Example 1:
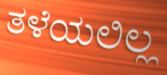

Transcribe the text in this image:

ತಳೆಯಲಿಲ್ಲ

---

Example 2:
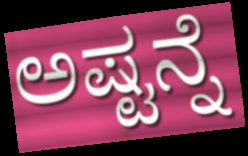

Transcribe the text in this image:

ಅಷ್ಟನ್ನೆ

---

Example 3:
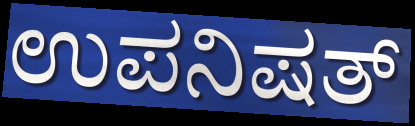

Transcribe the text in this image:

ಉಪನಿಷತ್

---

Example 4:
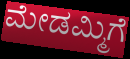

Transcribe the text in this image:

ಮೇಡಮ್ಮಿಗೆ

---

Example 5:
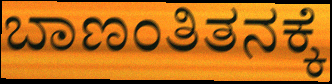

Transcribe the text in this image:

ಬಾಣಂತಿತನಕ್ಕೆ